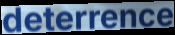
deterrence